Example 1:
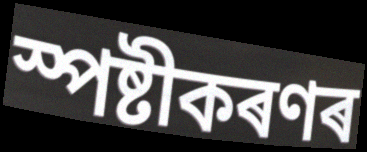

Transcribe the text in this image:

স্পষ্টীকৰণৰ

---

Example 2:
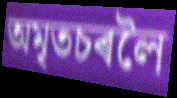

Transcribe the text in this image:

অমৃতচৰলৈ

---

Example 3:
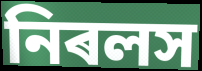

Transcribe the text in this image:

নিৰলস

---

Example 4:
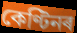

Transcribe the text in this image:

কেণ্টিনৰ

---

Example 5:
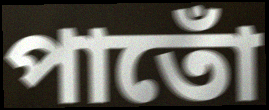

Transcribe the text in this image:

পাতোঁ